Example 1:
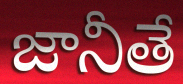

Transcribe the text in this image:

జానీతే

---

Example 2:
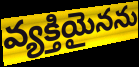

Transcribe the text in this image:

వ్యక్తియైనను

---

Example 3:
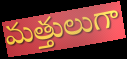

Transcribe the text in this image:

మత్తులుగా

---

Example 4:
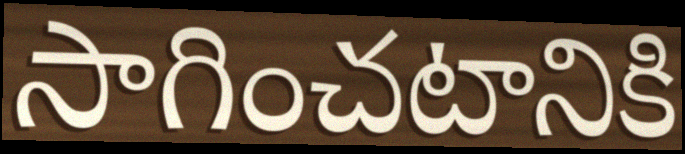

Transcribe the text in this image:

సాగించటానికి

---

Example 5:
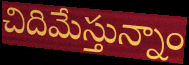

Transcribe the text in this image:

చిదిమేస్తున్నాం